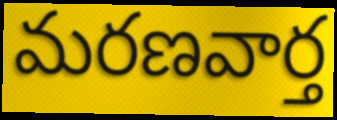
మరణవార్త